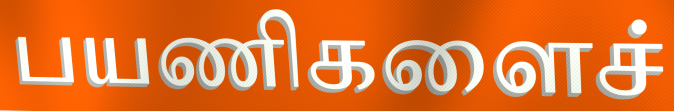
பயணிகளைச்